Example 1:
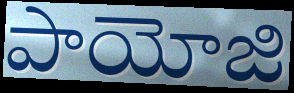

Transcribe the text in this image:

పాయోజి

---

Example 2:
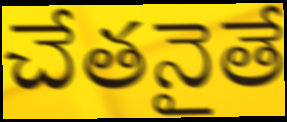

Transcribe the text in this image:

చేతనైతే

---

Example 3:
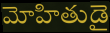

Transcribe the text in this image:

మోహితుడై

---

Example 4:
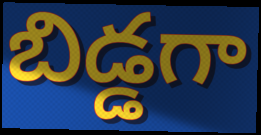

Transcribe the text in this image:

బిడ్డగా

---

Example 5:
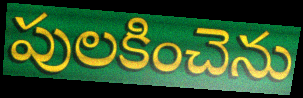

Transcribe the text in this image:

పులకించెను